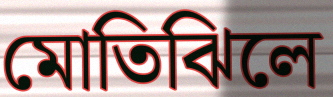
মোতিঝিলে